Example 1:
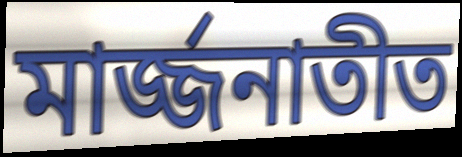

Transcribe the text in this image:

মার্জ্জনাতীত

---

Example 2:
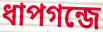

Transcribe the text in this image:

ধাপগন্জে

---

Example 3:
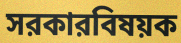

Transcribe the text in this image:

সরকারবিষয়ক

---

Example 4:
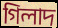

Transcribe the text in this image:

গিলাদ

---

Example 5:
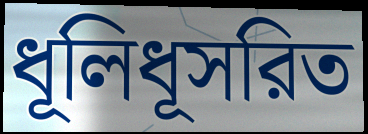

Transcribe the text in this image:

ধূলিধূসরিত